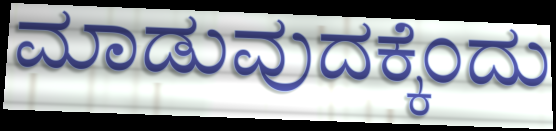
ಮಾಡುವುದಕ್ಕೆಂದು